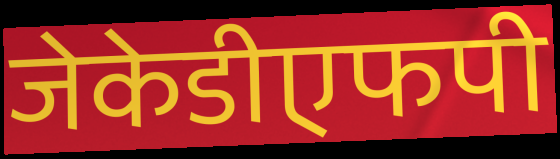
जेकेडीएफपी